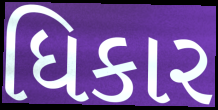
ધિકાર